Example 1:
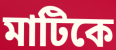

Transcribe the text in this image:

মাটিকে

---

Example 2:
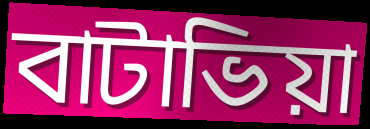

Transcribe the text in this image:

বাটাভিয়া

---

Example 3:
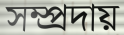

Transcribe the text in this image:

সম্প্রদায়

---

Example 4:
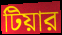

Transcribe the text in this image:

টিয়ার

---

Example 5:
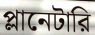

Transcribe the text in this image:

প্লানেটারি